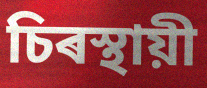
চিৰস্থায়ী